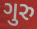
ગુરુ